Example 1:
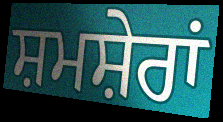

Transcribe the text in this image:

ਸ਼ਮਸ਼ੇਰਾਂ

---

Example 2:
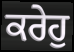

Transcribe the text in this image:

ਕਰੇਹੁ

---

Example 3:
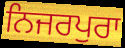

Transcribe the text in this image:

ਨਿਜਰਪੁਰਾ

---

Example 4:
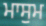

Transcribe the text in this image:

ਮਾਸੁਮ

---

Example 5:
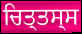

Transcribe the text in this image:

ਚਿਤ੍ਤਸ੍ਸ